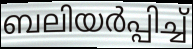
ബലിയർപ്പിച്ച്